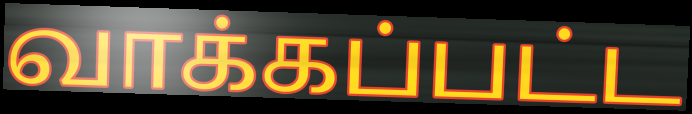
வாக்கப்பட்ட